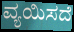
ವ್ಯಯಿಸದೆ